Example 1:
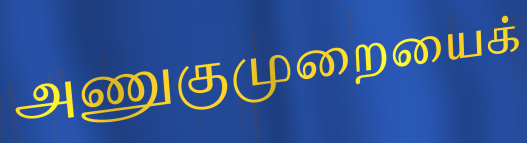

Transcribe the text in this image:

அணுகுமுறையைக்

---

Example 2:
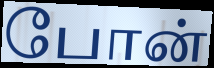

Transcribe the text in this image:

போன்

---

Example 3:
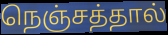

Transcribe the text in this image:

நெஞ்சத்தால்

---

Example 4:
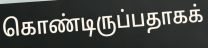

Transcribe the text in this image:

கொண்டிருப்பதாகக்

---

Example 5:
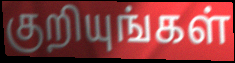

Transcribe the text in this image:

குறியுங்கள்